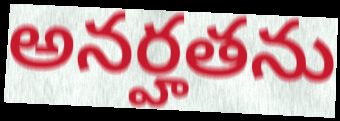
అనర్హతను